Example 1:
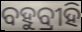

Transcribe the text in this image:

ବହୁବ୍ରୀହି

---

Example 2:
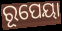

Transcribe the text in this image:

ରୂପେୟା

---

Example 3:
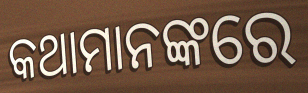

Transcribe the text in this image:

କଥାମାନଙ୍କରେ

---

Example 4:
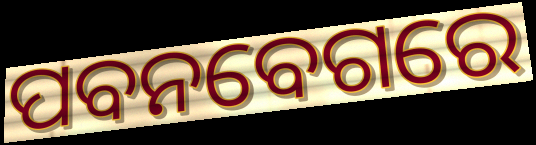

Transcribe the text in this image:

ପବନବେଗରେ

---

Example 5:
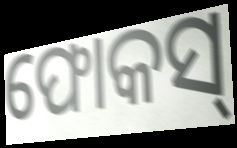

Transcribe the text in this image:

ଫୋକସ୍